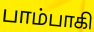
பாம்பாகி